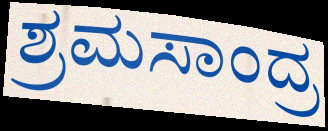
ಶ್ರಮಸಾಂದ್ರ